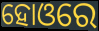
ହୋଓରେ